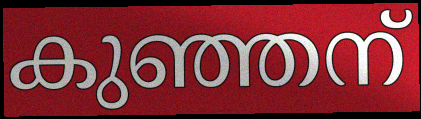
കുഞ്ഞന്